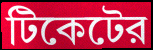
টিকেটের